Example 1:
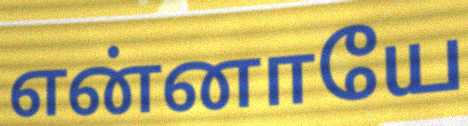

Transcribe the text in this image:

என்னாயே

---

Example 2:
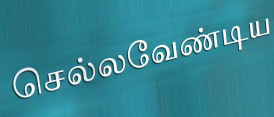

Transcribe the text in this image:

செல்லவேண்டிய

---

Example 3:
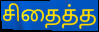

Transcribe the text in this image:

சிதைத்த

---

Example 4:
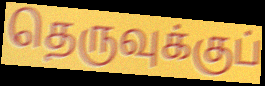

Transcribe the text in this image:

தெருவுக்குப்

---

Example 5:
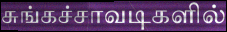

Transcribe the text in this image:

சுங்கச்சாவடிகளில்